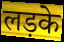
लड़के